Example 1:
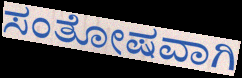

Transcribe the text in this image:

ಸಂತೋಷವಾಗಿ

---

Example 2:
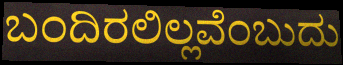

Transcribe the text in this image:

ಬಂದಿರಲಿಲ್ಲವೆಂಬುದು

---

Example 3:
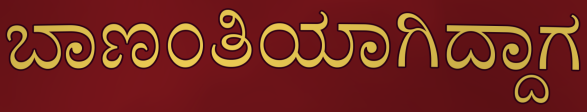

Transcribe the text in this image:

ಬಾಣಂತಿಯಾಗಿದ್ದಾಗ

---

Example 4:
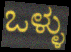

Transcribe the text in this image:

ಒಳ್ಳು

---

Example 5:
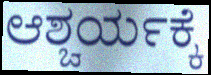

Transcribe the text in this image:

ಆಶ್ಚರ್ಯಕ್ಕೆ